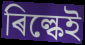
ৰিল্কেই